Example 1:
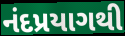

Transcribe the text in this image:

નંદપ્રયાગથી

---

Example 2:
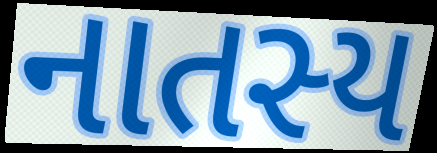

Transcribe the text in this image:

નાતસ્ય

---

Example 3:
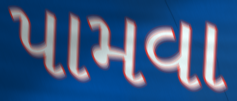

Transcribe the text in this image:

પામવા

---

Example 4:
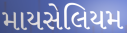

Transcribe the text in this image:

માયસેલિયમ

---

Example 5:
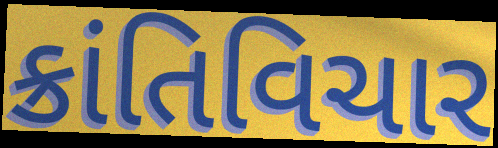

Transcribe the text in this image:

ક્રાંતિવિચાર